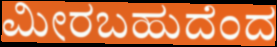
ಮೀರಬಹುದೆಂದ